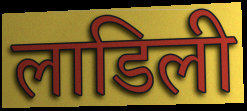
लाडिली